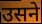
उसने